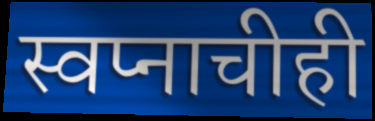
स्वप्नाचीही